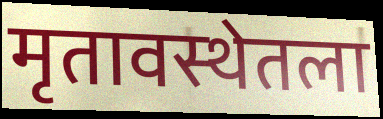
मृतावस्थेतला